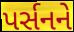
પર્સનને